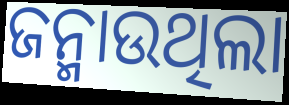
ଜନ୍ମାଉଥିଲା